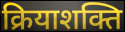
क्रियाशक्ति